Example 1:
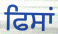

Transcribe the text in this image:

ਫਿਸਾਂ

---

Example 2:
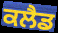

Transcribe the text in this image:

ਕਲੈਡ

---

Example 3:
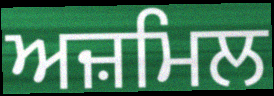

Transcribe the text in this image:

ਅਜ਼ਮਿਲ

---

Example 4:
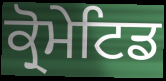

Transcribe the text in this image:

ਕ੍ਰੋਮੇਟਿਡ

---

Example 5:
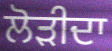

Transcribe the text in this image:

ਲੋੜੀਦਾ